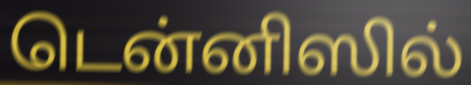
டென்னிஸில்